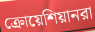
ক্রোয়েশিয়ানরা